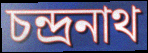
চন্দ্রনাথ